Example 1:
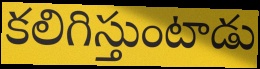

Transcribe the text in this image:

కలిగిస్తుంటాడు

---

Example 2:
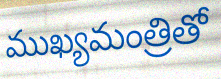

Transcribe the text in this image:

ముఖ్యమంత్రితో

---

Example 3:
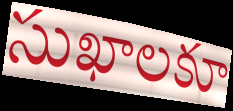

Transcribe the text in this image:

సుఖాలకూ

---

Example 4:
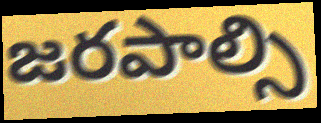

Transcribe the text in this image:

జరపాల్సి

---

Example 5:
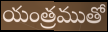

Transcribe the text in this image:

యంత్రముతో